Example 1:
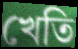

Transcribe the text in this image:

খেতি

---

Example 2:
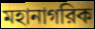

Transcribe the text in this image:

মহানাগরিক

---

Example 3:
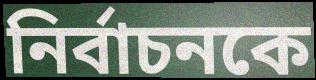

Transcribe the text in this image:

নির্বাচনকে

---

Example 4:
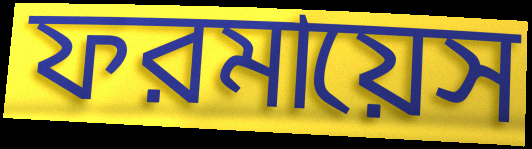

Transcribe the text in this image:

ফরমায়েস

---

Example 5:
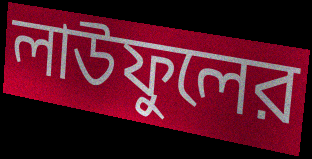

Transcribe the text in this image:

লাউফুলের